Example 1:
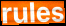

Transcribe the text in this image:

rules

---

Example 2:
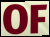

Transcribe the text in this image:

OF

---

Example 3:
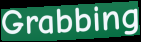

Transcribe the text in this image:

Grabbing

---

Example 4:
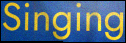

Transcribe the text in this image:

Singing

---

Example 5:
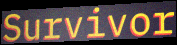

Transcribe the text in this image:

Survivor